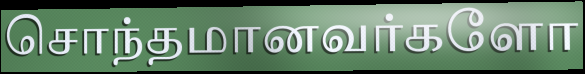
சொந்தமானவர்களோ